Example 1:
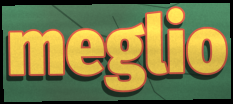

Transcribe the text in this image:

meglio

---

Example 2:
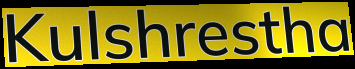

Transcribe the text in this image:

Kulshrestha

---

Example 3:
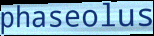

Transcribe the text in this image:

phaseolus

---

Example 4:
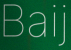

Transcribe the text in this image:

Baij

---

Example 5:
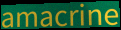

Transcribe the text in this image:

amacrine